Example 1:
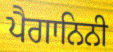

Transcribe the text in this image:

ਪੈਗਾਨਿਨੀ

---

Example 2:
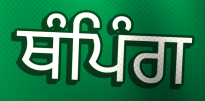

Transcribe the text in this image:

ਥੰਪਿੰਗ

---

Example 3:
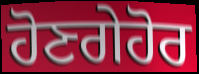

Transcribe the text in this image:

ਹੋਣਗੇਹੋਰ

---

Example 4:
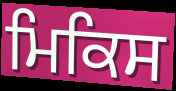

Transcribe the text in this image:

ਮਿਕਿਸ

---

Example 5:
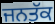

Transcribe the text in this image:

ਜਨਤੱਕ